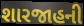
શારજાહની